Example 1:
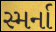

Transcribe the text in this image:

સ્મર્ના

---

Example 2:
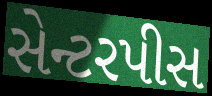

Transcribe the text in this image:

સેન્ટરપીસ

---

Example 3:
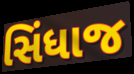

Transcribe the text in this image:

સિંધાજ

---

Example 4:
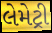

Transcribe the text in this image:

લેમેટ્રી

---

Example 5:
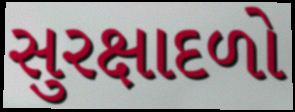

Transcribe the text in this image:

સુરક્ષાદળો